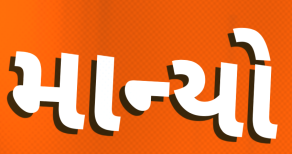
માન્યો